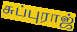
சுப்புராஜ்